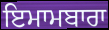
ਇਮਾਮਬਾਰਾ